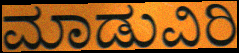
ಮಾಡುವಿರಿ